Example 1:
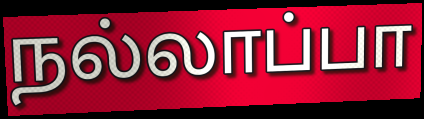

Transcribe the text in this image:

நல்லாப்பா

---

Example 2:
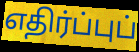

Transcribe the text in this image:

எதிர்ப்புப்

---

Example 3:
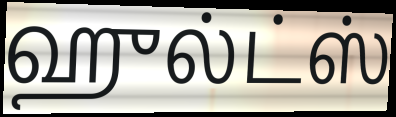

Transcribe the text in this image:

ஹுல்ட்ஸ்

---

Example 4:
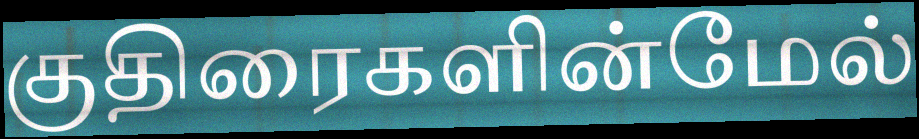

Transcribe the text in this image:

குதிரைகளின்மேல்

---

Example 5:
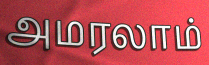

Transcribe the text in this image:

அமரலாம்